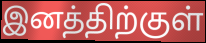
இனத்திற்குள்